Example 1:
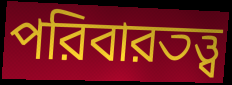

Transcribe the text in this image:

পরিবারতত্ত্ব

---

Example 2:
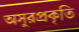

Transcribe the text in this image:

অসুরপ্রকৃতি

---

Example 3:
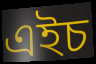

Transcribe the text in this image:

এইচ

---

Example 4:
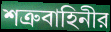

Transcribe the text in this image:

শত্রুবাহিনীর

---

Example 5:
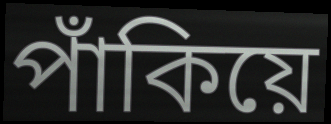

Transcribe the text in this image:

পাঁকিয়ে